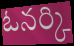
ఓనర్కి